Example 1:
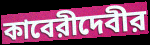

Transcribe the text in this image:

কাবেরীদেবীর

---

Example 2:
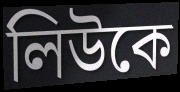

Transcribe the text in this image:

লিউকে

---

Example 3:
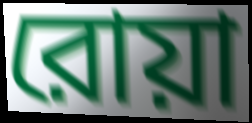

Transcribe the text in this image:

রোয়া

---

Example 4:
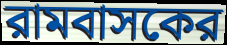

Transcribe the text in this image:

রামবাসকের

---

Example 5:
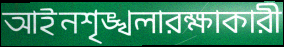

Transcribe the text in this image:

আইনশৃঙ্খলারক্ষাকারী